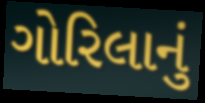
ગોરિલાનું